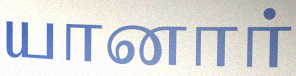
யானார்